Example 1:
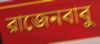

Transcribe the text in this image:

রাজেনবাবু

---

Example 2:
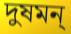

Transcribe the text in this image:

দুষমন্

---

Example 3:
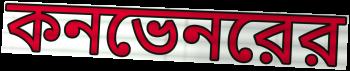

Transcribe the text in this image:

কনভেনরের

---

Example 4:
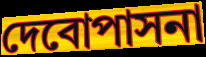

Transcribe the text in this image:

দেবোপাসনা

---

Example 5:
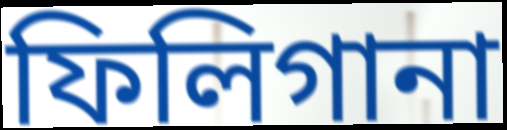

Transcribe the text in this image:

ফিলিগানা